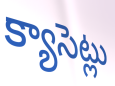
క్యాసెట్లు